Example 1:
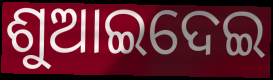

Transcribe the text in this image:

ଶୁଆଇଦେଇ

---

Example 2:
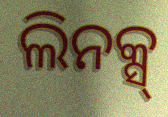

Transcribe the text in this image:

ଲିନକ୍ସ୍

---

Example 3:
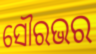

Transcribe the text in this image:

ସୌରଭର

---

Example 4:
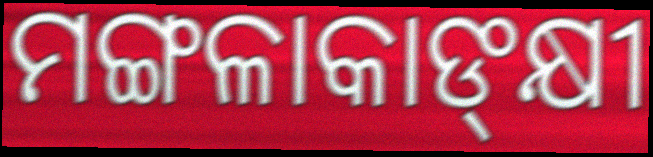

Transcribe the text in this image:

ମଙ୍ଗଳାକାଙ୍କ୍ଷୀ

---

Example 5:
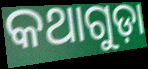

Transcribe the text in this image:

କଥାଗୁଡ଼ା